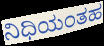
ನಿಧಿಯಂತಹ